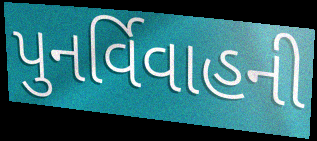
પુનર્વિવાહની